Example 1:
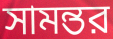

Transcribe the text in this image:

সামন্তর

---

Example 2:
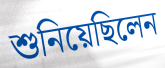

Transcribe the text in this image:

শুনিয়েছিলেন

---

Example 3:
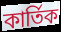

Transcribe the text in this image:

কার্তিক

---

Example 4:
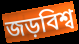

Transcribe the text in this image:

জড়বিশ্ব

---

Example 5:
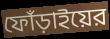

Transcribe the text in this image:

ফোঁড়াইয়ের